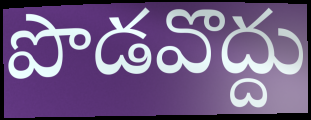
పొడవొద్దు